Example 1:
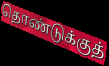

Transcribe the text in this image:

தொண்டுக்குத்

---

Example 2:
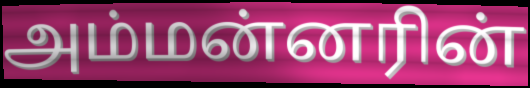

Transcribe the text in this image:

அம்மன்னரின்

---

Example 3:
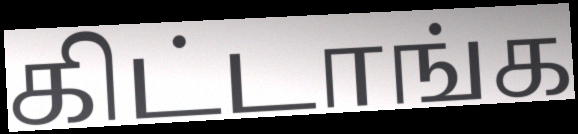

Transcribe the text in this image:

கிட்டாங்க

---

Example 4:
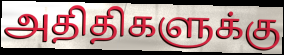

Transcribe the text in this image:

அதிதிகளுக்கு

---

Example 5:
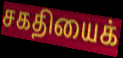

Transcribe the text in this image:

சகதியைக்